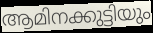
ആമിനക്കുട്ടിയും